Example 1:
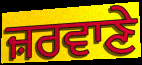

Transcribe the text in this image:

ਜ਼ਰਵਾਣੇ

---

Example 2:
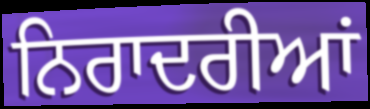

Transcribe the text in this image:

ਨਿਰਾਦਰੀਆਂ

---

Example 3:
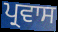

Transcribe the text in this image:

ਪ੍ਰਵਾਸ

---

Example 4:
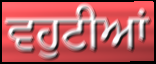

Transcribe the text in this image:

ਵਹੁਟੀਆਂ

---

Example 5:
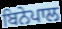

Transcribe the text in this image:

ਬਿਨੇਪਾਲ